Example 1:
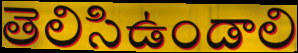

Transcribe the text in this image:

తెలిసిఉండాలి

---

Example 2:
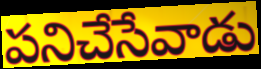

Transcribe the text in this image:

పనిచేసేవాడు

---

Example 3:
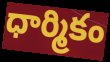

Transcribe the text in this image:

ధార్మికం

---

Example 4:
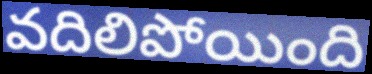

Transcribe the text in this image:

వదిలిపోయింది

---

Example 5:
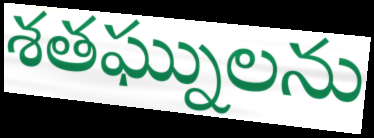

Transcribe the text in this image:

శతఘ్నులను